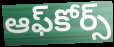
ఆఫ్‌కోర్స్